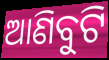
ଆଣିବୁଟି